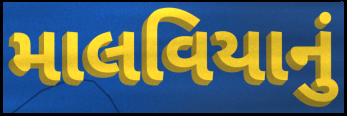
માલવિયાનું